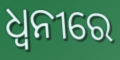
ଧ୍ଵନୀରେ